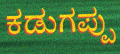
ಕಡುಗಪ್ಪು